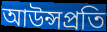
আউন্সপ্রতি